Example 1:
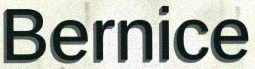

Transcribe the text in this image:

Bernice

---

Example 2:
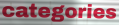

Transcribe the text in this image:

categories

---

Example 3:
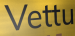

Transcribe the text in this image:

Vettu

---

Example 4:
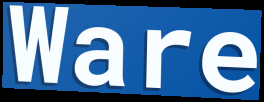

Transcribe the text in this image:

Ware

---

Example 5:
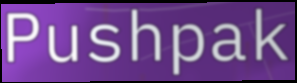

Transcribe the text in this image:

Pushpak